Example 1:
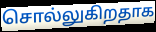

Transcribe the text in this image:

சொல்லுகிறதாக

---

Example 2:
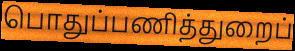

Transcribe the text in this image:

பொதுப்பணித்துறைப்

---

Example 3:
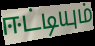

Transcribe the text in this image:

ஈட்டியும்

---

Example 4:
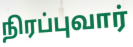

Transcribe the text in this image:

நிரப்புவார்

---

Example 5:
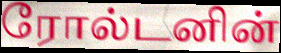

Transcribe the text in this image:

ரோல்டனின்